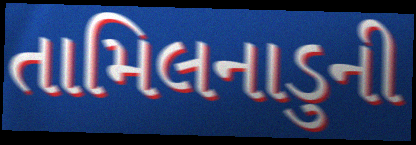
તામિલનાડુની